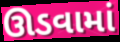
ઊડવામાં